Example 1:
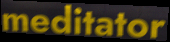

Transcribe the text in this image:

meditator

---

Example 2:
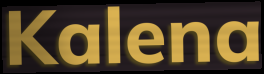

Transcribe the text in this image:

Kalena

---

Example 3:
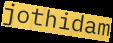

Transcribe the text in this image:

jothidam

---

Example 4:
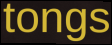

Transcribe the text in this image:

tongs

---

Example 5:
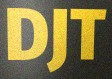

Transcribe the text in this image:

DJT